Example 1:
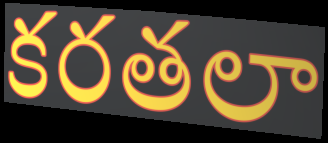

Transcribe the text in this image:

కరతలా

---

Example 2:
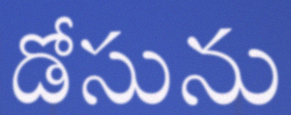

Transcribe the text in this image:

డోసును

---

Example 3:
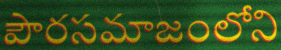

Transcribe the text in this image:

పౌరసమాజంలోని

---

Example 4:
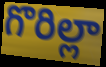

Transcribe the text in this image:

గొరిల్లా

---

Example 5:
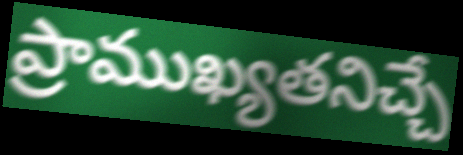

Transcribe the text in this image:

ప్రాముఖ్యతనిచ్చే